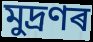
মুদ্ৰণৰ